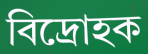
বিদ্ৰোহক